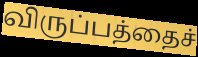
விருப்பத்தைச்